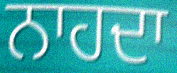
ਨਾਹਦਾ